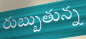
రుబ్బుతున్న